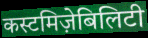
कस्टमिज़ेबिलिटी